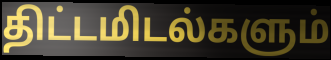
திட்டமிடல்களும்